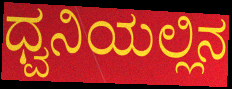
ಧ್ವನಿಯಲ್ಲಿನ